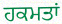
ਹਕਮਤਾਂ